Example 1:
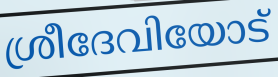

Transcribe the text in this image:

ശ്രീദേവിയോട്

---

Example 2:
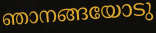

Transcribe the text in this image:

ഞാനങ്ങയോടു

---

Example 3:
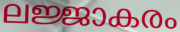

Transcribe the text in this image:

ലജ്ജാകരം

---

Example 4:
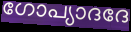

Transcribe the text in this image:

ഗോപ്യാദദേ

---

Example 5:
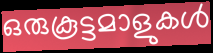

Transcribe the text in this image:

ഒരുകൂട്ടമാളുകൾ